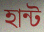
হান্ট